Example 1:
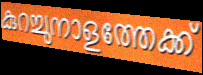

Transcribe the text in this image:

കുറച്ചുനാളത്തേക്ക്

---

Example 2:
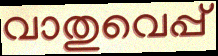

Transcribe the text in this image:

വാതുവെപ്പ്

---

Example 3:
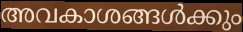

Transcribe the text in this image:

അവകാശങ്ങൾക്കും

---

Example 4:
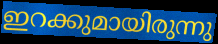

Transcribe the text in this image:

ഇറക്കുമായിരുന്നു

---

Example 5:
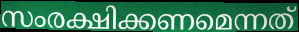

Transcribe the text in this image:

സംരക്ഷിക്കണമെന്നത്